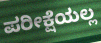
ಪರೀಕ್ಷೆಯಲ್ಲ